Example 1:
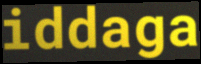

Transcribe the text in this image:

iddaga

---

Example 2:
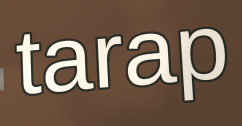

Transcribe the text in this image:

tarap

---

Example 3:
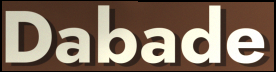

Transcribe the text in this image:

Dabade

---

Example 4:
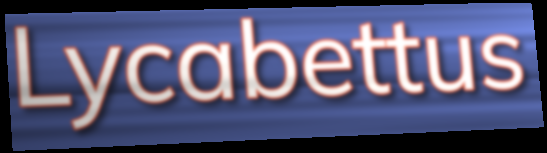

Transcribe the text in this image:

Lycabettus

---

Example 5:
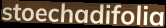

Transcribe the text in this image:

stoechadifolia